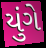
યુંગે